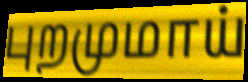
புறமுமாய்